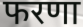
फरणा